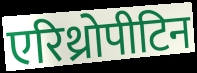
एरिथ्रोपीटिन